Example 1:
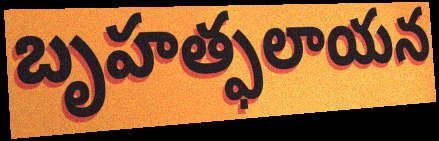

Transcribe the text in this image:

బృహత్ఫలాయన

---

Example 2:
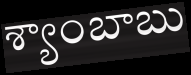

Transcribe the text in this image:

శ్యాంబాబు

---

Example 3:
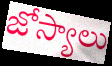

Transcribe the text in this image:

జోస్యాలు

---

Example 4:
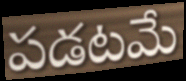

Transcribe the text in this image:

పడటమే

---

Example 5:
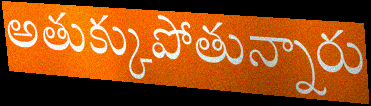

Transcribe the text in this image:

అతుక్కుపోతున్నారు